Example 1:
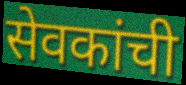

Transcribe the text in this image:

सेवकांची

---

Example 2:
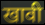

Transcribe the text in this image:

खावी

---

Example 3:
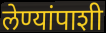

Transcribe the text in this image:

लेण्यांपाशी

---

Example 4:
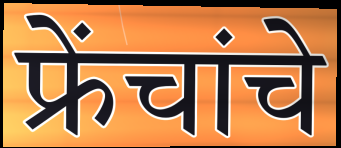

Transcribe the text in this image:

फ्रेंचांचे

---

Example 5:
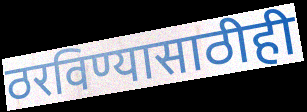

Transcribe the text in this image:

ठरविण्यासाठीही